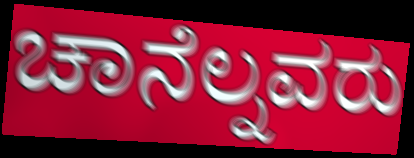
ಚಾನೆಲ್ನವರು